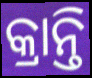
କ୍ରାନ୍ତି